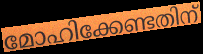
മോഹിക്കേണ്ടതിന്